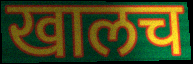
खालच